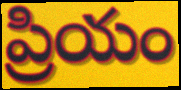
ప్రియం